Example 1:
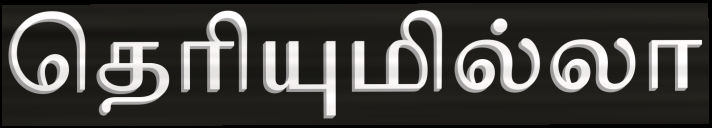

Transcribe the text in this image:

தெரியுமில்லா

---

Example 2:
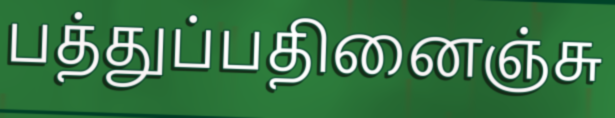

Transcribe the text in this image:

பத்துப்பதினைஞ்சு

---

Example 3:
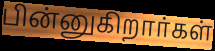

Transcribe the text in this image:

பின்னுகிறார்கள்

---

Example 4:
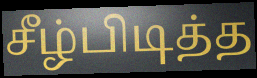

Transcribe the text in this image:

சீழ்பிடித்த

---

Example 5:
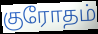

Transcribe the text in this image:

குரோதம்